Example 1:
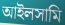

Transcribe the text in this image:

আইলসামি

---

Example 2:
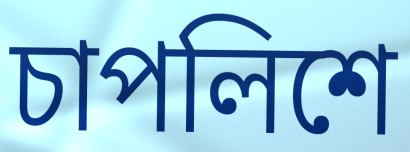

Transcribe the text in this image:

চাপলিশে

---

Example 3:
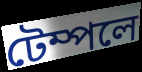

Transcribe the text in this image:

টেম্পলে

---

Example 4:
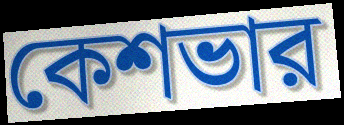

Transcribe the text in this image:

কেশভার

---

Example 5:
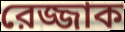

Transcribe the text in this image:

রেজ্জাক